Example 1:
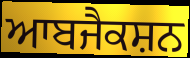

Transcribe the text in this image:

ਆਬਜੈਕਸ਼ਨ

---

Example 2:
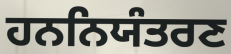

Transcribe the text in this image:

ਹਨਨਿਯੰਤਰਣ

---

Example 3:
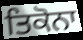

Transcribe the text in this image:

ਤਿਕੋਨਾ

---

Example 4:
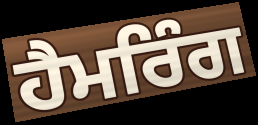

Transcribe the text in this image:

ਹੈਮਰਿੰਗ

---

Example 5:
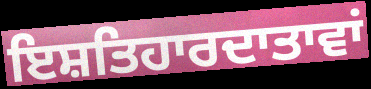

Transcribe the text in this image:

ਇਸ਼ਤਿਹਾਰਦਾਤਾਵਾਂ